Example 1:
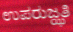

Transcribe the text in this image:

ಉಪರುಜ್ಝತಿ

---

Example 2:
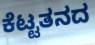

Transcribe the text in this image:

ಕೆಟ್ಟತನದ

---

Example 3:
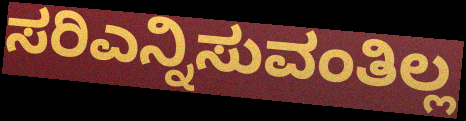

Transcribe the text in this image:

ಸರಿಎನ್ನಿಸುವಂತಿಲ್ಲ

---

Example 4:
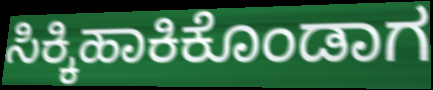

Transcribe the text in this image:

ಸಿಕ್ಕಿಹಾಕಿಕೊಂಡಾಗ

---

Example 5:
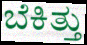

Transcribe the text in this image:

ಬೆಕಿತ್ತು